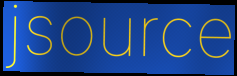
jsource